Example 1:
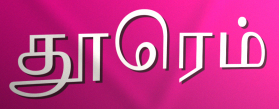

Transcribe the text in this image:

தூரெம்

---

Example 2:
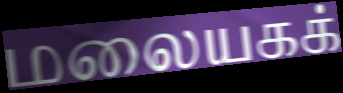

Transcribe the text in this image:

மலையகக்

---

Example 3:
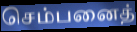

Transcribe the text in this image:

செம்பனைத்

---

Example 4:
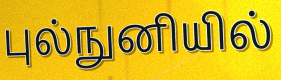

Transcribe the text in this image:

புல்நுனியில்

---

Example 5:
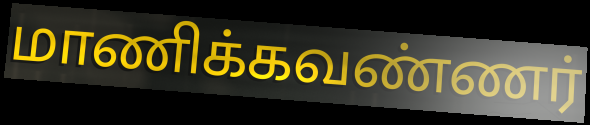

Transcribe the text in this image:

மாணிக்கவண்ணர்